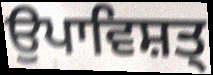
ਉਪਾਵਿਸ਼ਤ੍